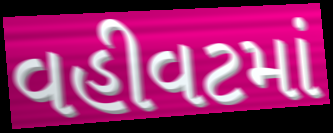
વહીવટમાં